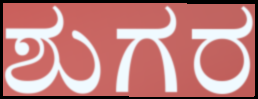
ಶುಗರ